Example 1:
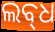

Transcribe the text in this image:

ଲବ୍‍ଧ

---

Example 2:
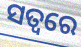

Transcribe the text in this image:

ସତ୍ଵରେ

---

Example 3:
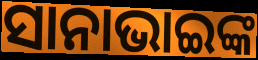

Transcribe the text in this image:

ସାନାଭାଇଙ୍କ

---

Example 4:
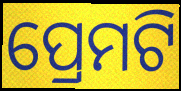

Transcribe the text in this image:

ପ୍ରେମଟି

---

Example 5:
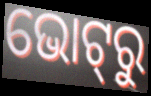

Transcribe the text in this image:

ଭୋଟ୍‌ରୁ